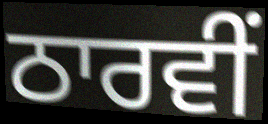
ਠਾਰਵੀਂ